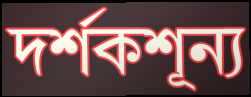
দর্শকশূন্য